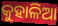
କୁହାଳିଆ